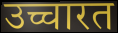
उच्चारत